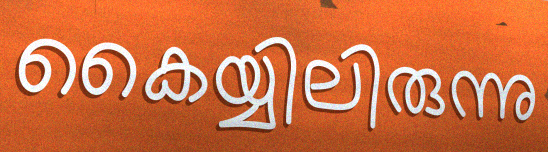
കൈയ്യിലിരുന്നു